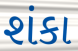
શંકા